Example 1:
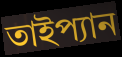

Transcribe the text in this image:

তাইপ্যান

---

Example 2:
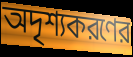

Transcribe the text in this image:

অদৃশ্যকরণের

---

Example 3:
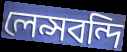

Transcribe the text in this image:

লেন্সবন্দি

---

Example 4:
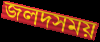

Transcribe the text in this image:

জলদসময়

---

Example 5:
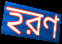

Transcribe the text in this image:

হরণ